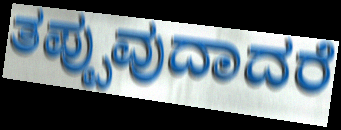
ತಪ್ಪುವುದಾದರೆ